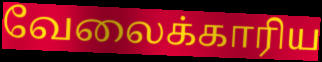
வேலைக்காரிய